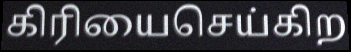
கிரியைசெய்கிற